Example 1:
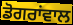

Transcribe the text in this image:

ਡੋਗਰਾਂਵਾਲ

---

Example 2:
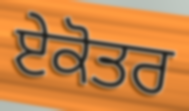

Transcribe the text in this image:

ਏਕੋਤਰ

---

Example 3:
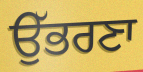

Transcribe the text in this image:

ਉੱਭਰਣਾ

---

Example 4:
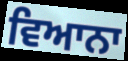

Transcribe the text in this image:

ਵਿਆਨਾ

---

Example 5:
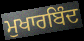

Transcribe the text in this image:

ਮੁਖਾਰਬਿੰਦ